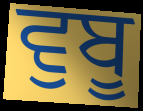
ਵੁਬੂ